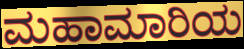
ಮಹಾಮಾರಿಯ